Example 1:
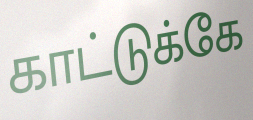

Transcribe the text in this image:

காட்டுக்கே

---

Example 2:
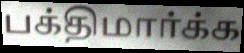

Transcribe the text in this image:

பக்திமார்க்க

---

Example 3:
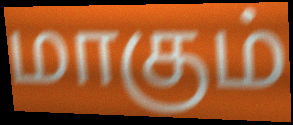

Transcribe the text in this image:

மாகும்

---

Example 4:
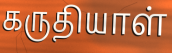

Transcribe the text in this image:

கருதியாள்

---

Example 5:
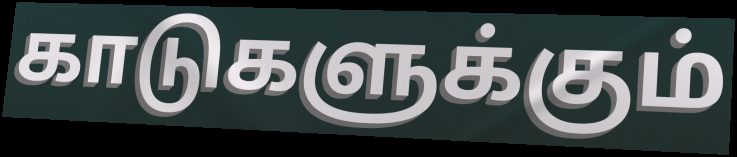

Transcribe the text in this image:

காடுகளுக்கும்